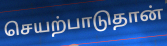
செயற்பாடுதான்